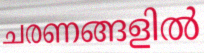
ചരണങ്ങളിൽ